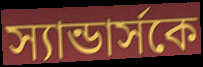
স্যান্ডার্সকে